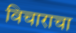
विचाराचा